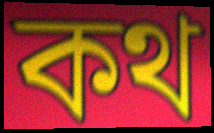
কথ